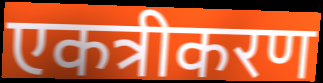
एकत्रीकरण